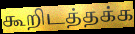
கூறிடத்தக்க